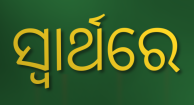
ସ୍ବାର୍ଥରେ